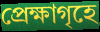
প্রেক্ষাগৃহে